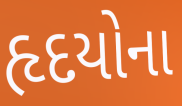
હૃદયોના